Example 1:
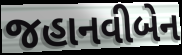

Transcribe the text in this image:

જહાનવીબેન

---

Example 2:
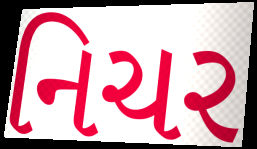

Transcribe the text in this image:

નિચર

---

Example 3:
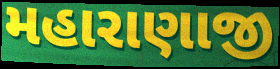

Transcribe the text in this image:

મહારાણાજી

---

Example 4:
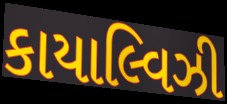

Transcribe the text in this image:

કાયાલ્વિઝી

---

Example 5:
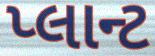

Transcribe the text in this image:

પ્લાન્ટ